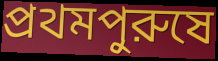
প্রথমপুরুষে